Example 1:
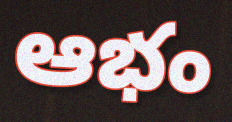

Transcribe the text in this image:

ఆభం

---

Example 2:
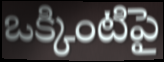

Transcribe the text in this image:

ఒక్కింటిపై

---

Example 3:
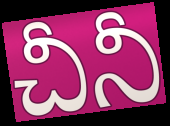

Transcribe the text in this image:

చీనీ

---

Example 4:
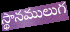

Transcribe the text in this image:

స్థానములుగ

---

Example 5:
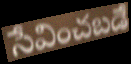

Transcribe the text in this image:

సేవించబడే